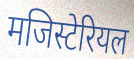
मजिस्टेरियल